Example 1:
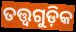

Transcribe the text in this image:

ତତ୍ତ୍ବଗୁଡ଼ିକ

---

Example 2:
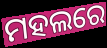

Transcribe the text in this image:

ମହଲରେ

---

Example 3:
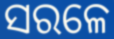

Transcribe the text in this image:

ସରଳେ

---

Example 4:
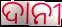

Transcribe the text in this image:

ଦାନୀ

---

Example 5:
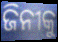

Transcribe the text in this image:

ଜିନୀକୁ